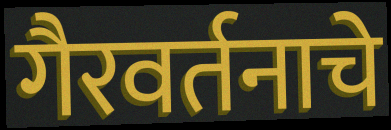
गैरवर्तनाचे